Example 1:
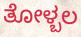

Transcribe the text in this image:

ತೋಳ್ಬಲ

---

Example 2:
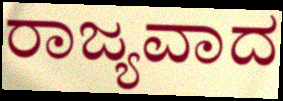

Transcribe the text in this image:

ರಾಜ್ಯವಾದ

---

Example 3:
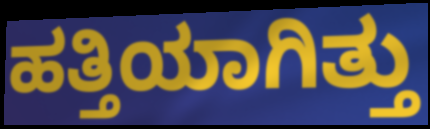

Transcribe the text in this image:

ಹತ್ತಿಯಾಗಿತ್ತು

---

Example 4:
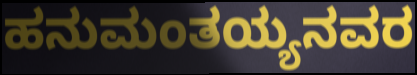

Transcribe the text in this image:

ಹನುಮಂತಯ್ಯನವರ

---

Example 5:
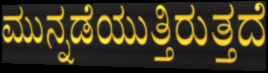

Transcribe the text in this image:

ಮುನ್ನಡೆಯುತ್ತಿರುತ್ತದೆ